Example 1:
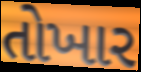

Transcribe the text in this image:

તોખાર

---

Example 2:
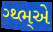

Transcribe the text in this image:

ગ્થ્ભ્એ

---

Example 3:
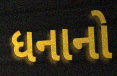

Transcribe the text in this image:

ધનાનો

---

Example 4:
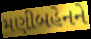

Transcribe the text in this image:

મણીબહેનને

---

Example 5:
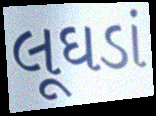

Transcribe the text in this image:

લૂઘડાં